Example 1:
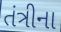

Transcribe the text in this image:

તંત્રીના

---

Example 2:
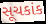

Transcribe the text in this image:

સૂચકાંક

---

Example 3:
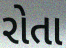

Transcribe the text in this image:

રોતા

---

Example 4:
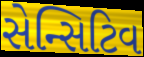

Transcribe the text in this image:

સેન્સિટિવ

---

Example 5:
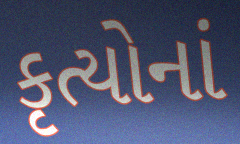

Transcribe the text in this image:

કૃત્યોનાં